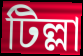
টিল্লা